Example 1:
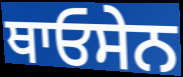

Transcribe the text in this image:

ਥਾਓਸੇਨ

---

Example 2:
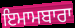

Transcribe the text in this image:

ਇਮਾਮਬਾਰਾ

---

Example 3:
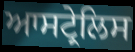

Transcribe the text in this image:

ਆਸਟ੍ਰੇਲਿਸ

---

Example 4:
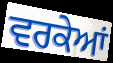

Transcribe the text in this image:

ਵਰਕੇਆਂ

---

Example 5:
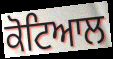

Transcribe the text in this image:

ਕੋਟਿਆਲ